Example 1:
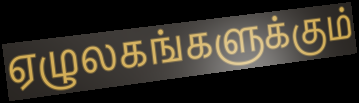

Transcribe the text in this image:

ஏழுலகங்களுக்கும்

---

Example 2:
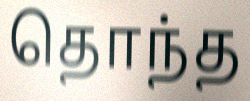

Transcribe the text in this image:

தொந்த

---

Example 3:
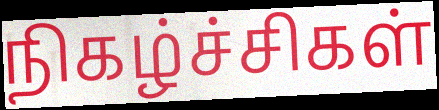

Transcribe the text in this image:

நிகழ்ச்சிகள்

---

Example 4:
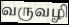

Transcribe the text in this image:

வருவழி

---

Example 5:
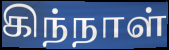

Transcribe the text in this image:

கிந்நாள்